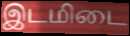
இடமிடை